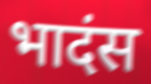
भादंस